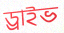
ড্রাইভ